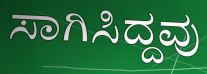
ಸಾಗಿಸಿದ್ದವು